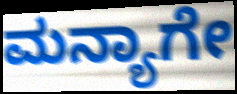
ಮನ್ಯಾಗೇ